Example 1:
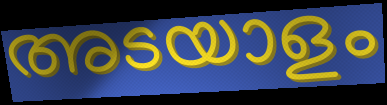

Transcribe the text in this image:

അടയാളം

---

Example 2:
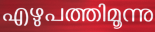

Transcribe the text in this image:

എഴുപത്തിമൂന്നു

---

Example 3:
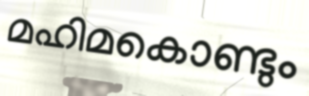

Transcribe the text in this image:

മഹിമകൊണ്ടും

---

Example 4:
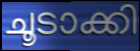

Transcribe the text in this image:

ചൂടാക്കി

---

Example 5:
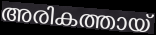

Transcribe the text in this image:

അരികത്തായ്